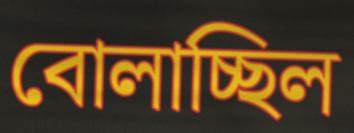
বোলাচ্ছিল